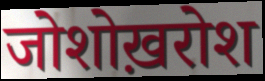
जोशोख़रोश